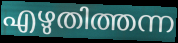
എഴുതിത്തന്ന